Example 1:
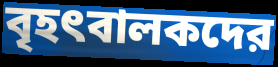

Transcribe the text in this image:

বৃহৎবালকদের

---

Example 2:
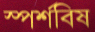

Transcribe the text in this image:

স্পর্শবিষ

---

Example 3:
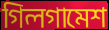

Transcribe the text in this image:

গিলগামেশ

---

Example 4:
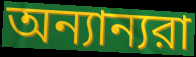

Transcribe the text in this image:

অন্যান্যরা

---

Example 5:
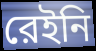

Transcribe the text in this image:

রেইনি